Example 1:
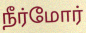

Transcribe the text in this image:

நீர்மோர்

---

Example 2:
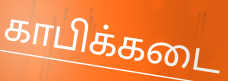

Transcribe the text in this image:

காபிக்கடை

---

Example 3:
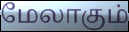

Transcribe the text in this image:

மேலாகும்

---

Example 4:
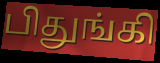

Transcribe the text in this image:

பிதுங்கி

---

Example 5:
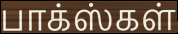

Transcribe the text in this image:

பாக்ஸ்கள்